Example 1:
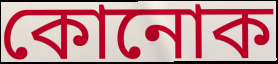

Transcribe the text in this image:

কোনোক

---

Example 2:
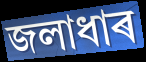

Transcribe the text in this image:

জলাধাৰ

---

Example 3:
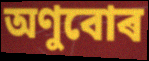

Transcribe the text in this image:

অণুবোৰ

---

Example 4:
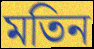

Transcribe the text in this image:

মতিন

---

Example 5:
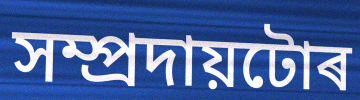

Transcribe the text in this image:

সম্প্ৰদায়টোৰ